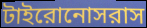
টাইরোনোসরাস